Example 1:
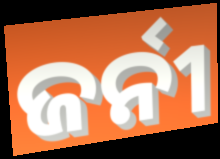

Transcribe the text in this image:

ଜର୍ନୀ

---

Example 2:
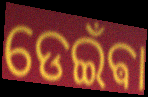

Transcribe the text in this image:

ଡେଇଁଵା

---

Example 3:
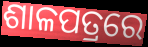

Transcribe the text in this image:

ଶାଳପତ୍ରରେ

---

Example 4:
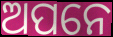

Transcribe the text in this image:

ଅପନେ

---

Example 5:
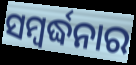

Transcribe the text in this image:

ସମ୍ବର୍ଦ୍ଧନାର